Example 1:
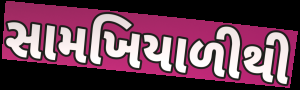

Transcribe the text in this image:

સામખિયાળીથી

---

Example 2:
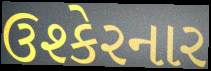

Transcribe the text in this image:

ઉશ્કેરનાર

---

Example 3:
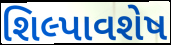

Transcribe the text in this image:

શિલ્પાવશેષ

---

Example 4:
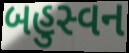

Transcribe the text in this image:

બહુસ્વન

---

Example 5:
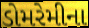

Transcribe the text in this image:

ડોમરેમીના